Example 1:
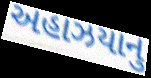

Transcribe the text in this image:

અહાઝયાનુ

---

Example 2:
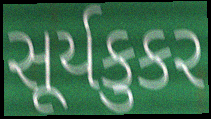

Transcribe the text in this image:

સૂર્યકુકર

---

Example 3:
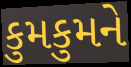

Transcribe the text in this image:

કુમકુમને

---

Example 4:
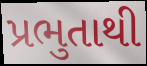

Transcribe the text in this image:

પ્રભુતાથી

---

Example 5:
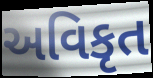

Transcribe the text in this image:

અવિકૃત